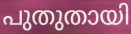
പുതുതായി